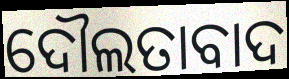
ଦୌଲତାବାଦ